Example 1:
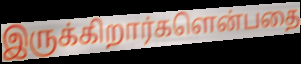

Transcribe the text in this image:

இருக்கிறார்களென்பதை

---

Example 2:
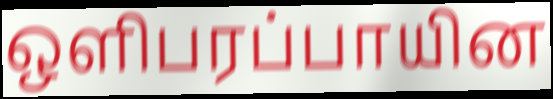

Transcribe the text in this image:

ஒளிபரப்பாயின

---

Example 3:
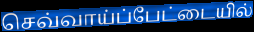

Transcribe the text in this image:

செவ்வாய்ப்பேட்டையில்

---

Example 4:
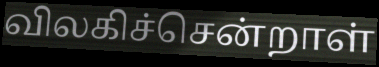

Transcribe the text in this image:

விலகிச்சென்றாள்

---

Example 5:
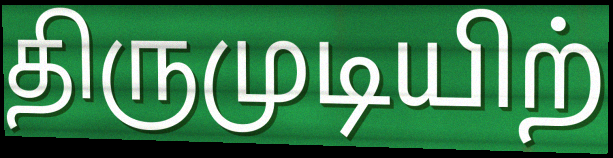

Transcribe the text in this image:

திருமுடியிற்